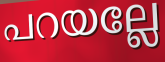
പറയല്ലേ